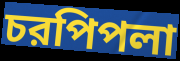
চরপিপলা